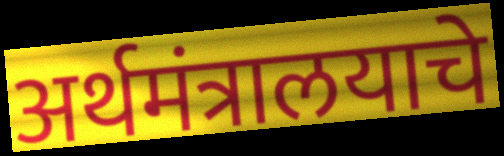
अर्थमंत्रालयाचे